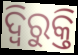
ଦ୍ୱିରୁକ୍ତି